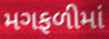
મગફળીમાં